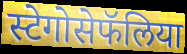
स्टेगोसेफॅलिया